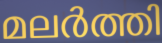
മലർത്തി